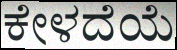
ಕೇಳದೆಯೆ